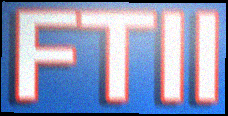
FTII